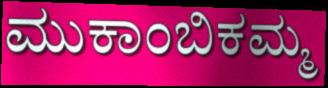
ಮುಕಾಂಬಿಕಮ್ಮ